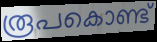
രൂപകൊണ്ട്